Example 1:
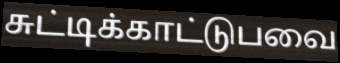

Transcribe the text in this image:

சுட்டிக்காட்டுபவை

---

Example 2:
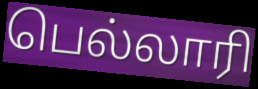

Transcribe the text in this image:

பெல்லாரி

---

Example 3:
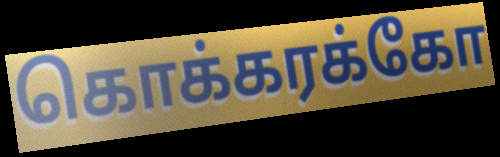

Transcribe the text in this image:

கொக்கரக்கோ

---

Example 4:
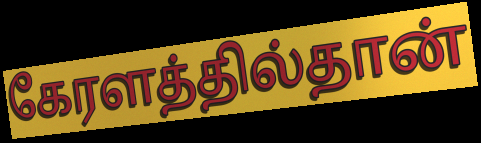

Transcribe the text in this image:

கேரளத்தில்தான்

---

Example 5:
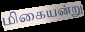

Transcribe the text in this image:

மிகையன்று